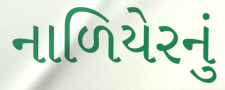
નાળિયેરનું